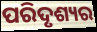
ପରିଦୃଶ୍ୟର